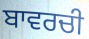
ਬਾਵਰਚੀ